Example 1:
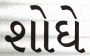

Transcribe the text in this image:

શોઘે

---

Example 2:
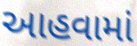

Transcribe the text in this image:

આહવામાં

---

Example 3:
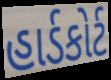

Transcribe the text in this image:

હાર્ડકોર્ટ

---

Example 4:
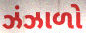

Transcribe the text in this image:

ઝંઝાળો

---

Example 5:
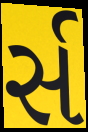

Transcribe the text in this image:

ર્સ